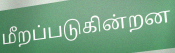
மீறப்படுகின்றன